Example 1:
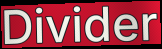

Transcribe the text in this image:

Divider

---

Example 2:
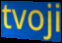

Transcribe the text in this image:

tvoji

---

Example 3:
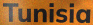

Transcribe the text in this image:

Tunisia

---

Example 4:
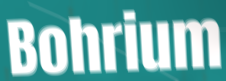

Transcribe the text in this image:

Bohrium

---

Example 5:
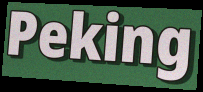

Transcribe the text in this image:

Peking